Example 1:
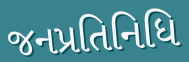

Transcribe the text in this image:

જનપ્રતિનિધિ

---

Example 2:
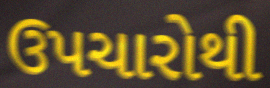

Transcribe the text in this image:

ઉપચારોથી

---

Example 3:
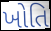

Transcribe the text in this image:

ખોતિ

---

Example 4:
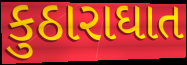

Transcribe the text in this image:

કુઠારાઘાત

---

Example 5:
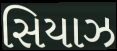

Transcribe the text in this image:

સિયાઝ